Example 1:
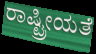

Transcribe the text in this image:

ರಾಷ್ಟ್ರೀಯತೆ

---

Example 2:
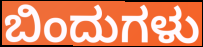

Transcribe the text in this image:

ಬಿಂದುಗಳು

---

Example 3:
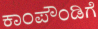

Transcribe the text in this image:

ಕಾಂಪೌಂಡಿಗೆ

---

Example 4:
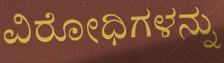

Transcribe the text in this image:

ವಿರೋಧಿಗಳನ್ನು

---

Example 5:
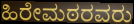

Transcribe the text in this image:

ಹಿರೇಮಠರವರು